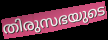
തിരുസഭയുടെ